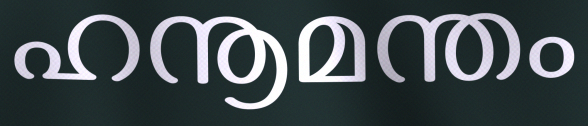
ഹനൂമന്തം